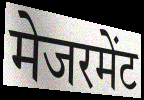
मेजरमेंट